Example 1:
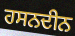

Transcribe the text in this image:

ਹਸਨਦੀਨ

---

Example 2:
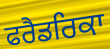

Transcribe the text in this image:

ਫਰੈਡਰਿਕਾ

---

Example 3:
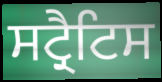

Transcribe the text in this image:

ਸਟ੍ਰੈਟਿਸ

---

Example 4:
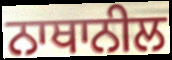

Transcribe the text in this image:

ਨਾਥਾਨੀਲ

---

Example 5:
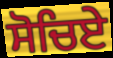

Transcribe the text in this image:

ਸੋਚਿਏ